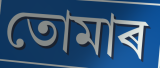
তোমাৰ